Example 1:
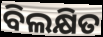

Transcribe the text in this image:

ବିଲକ୍ଷିତ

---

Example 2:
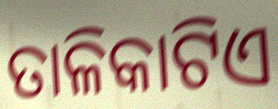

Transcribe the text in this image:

ତାଳିକାଟିଏ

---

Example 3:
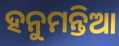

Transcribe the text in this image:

ହନୁମନ୍ତିଆ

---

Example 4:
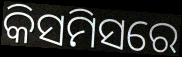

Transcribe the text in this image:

କିସମିସରେ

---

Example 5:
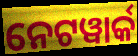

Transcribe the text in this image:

ନେଟୱାର୍କ